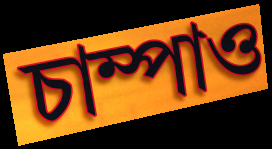
চাম্পাও